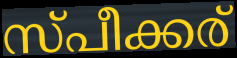
സ്പീക്കര്